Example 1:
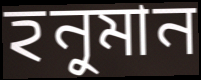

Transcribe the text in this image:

হনুমান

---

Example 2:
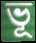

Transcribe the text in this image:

ভূ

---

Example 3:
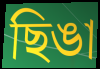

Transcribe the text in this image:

ছিঙা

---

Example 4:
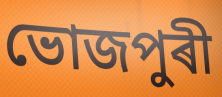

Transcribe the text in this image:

ভোজপুৰী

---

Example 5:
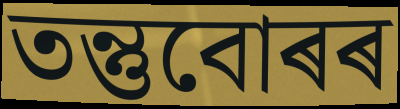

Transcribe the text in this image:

তন্তুবোৰৰ